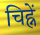
चिह्नें